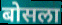
बोसला